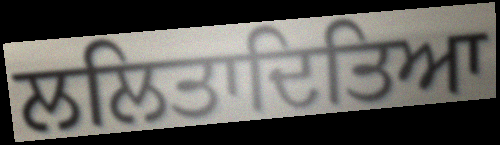
ਲਲਿਤਾਦਿਤਿਆ